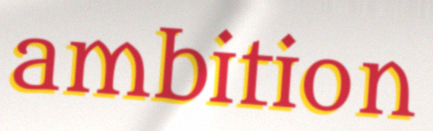
ambition